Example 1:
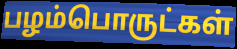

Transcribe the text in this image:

பழம்பொருட்கள்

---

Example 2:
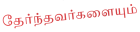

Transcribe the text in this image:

தேர்ந்தவர்களையும்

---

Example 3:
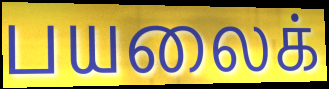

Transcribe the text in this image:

பயலைக்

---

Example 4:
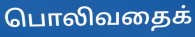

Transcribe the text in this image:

பொலிவதைக்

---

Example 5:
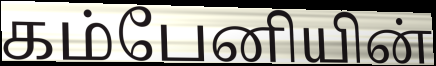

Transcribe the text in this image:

கம்பேனியின்